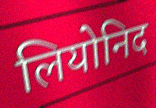
लियोनिद